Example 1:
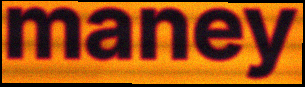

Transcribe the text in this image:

maney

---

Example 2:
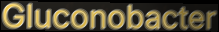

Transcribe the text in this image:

Gluconobacter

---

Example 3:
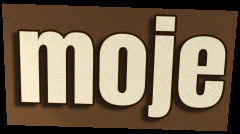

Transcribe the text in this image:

moje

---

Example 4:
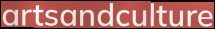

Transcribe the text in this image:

artsandculture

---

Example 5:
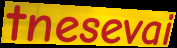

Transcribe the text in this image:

tnesevai